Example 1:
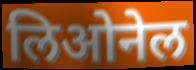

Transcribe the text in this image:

लिओनेल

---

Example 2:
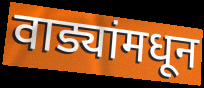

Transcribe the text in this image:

वाड्यांमधून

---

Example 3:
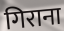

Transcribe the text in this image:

गिराना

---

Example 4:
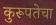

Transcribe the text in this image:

कुरूपतेचा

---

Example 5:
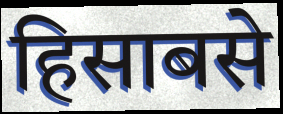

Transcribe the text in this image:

हिसाबसे